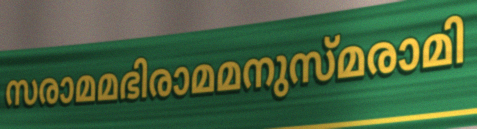
സരാമമഭിരാമമനുസ്മരാമി